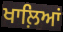
ਖਾਲ਼ਿਆਂ